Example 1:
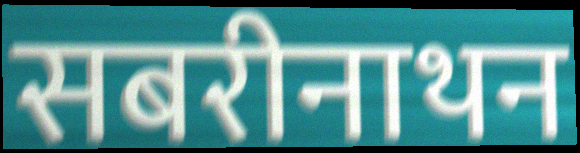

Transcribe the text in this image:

सबरीनाथन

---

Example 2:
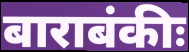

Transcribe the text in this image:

बाराबंकीः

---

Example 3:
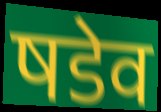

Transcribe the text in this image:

षडेव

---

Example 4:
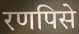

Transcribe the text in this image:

रणपिसे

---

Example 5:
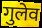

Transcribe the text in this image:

गुलेव